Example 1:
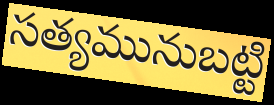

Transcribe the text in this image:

సత్యమునుబట్టి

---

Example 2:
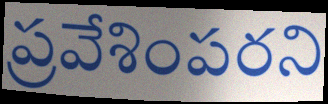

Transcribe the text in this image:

ప్రవేశింపరని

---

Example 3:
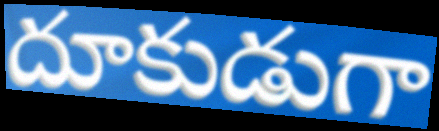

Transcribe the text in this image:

దూకుడుగా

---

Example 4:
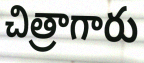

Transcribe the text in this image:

చిత్రాగారు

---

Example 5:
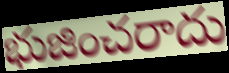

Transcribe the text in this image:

భుజించరాదు